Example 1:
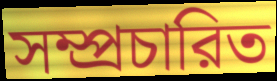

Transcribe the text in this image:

সম্প্রচারিত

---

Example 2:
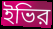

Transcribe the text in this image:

ইভির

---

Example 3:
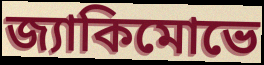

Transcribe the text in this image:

জ্যাকিমোভে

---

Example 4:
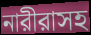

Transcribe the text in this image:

নারীরাসহ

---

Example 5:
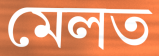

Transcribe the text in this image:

মেলত